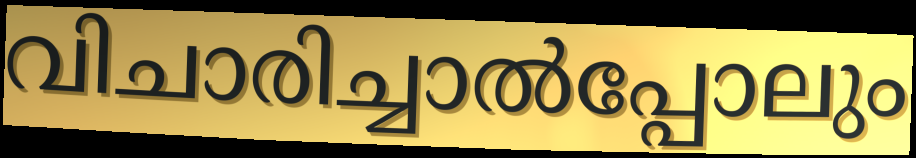
വിചാരിച്ചാൽപ്പോലും